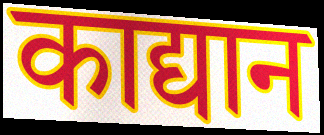
काद्यान